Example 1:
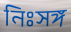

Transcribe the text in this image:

নিঃসঙ্গ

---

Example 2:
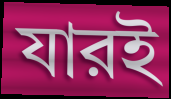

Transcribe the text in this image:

যারই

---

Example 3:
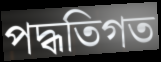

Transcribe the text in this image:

পদ্ধতিগত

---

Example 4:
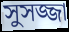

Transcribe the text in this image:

সুসজ্জা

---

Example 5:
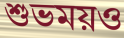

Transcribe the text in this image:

শুভময়ও